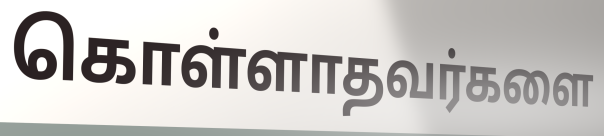
கொள்ளாதவர்களை